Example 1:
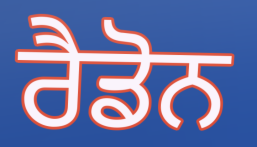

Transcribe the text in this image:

ਰੈਡੋਨ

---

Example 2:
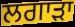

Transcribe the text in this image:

ਲਗਾੜਾ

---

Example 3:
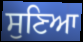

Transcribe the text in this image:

ਸੁਣਿਆ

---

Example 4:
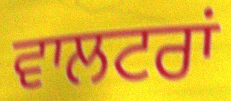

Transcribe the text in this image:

ਵਾਲਟਰਾਂ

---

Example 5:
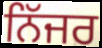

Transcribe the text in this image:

ਨਿੱਜਰ